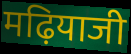
मढ़ियाजी